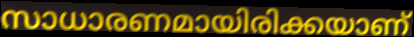
സാധാരണമായിരിക്കയാണ്